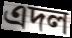
এদল